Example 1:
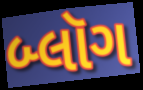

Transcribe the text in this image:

બ્લૉગ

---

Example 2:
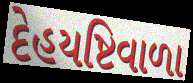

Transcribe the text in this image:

દેહયષ્ટિવાળા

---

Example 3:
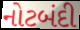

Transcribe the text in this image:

નોટબંદી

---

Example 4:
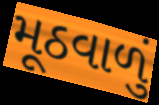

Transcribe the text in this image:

મૂઠવાળું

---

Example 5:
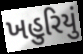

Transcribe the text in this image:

ખહુરિયું